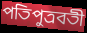
পতিপুত্রবতী